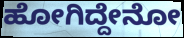
ಹೋಗಿದ್ದೇನೋ